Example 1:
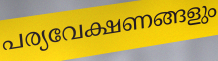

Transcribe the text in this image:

പര്യവേക്ഷണങ്ങളും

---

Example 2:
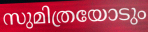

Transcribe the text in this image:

സുമിത്രയോടും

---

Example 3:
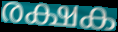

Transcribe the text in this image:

രക്ഷക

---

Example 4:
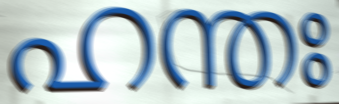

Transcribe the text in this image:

ഹന്തഃ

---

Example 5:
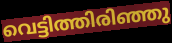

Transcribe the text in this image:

വെട്ടിത്തിരിഞ്ഞു